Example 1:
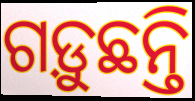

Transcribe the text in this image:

ଗଡ଼ୁଛନ୍ତି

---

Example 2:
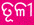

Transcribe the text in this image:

ତୂଳୀ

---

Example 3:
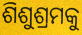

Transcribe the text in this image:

ଶିଶୁଶ୍ରମକୁ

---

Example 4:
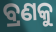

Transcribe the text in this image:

ବ୍ରଣକୁ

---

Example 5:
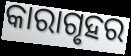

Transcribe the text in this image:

କାରାଗୃହର